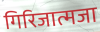
गिरिजात्मजा